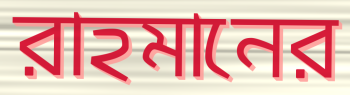
রাহমানের